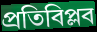
প্রতিবিপ্লব